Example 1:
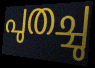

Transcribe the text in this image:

പുതച്ചു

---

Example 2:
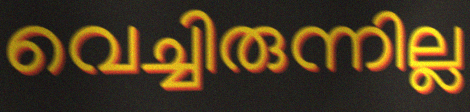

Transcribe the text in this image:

വെച്ചിരുന്നില്ല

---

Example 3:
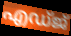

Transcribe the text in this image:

എഡ്ജ്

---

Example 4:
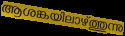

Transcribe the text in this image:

ആശങ്കയിലാഴ്ത്തുന്നു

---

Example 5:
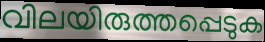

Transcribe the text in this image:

വിലയിരുത്തപ്പെടുക